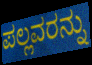
ಪಲ್ಲವರನ್ನು